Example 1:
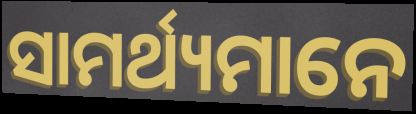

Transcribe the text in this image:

ସାମର୍ଥ୍ୟମାନେ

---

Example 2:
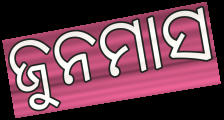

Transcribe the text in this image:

ଜୁନମାସ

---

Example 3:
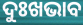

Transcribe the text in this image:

ଦୁଃଖଭାବ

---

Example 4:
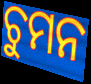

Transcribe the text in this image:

ଚୁମନ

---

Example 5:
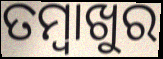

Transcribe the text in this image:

ତମ୍ବାଖୁର